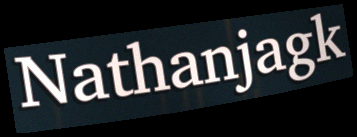
Nathanjagk